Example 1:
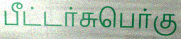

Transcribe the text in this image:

பீட்டர்சுபெர்கு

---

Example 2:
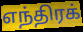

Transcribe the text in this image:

எந்திரக்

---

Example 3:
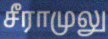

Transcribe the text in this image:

சீராமுலு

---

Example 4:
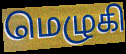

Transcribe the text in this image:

மெழுகி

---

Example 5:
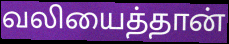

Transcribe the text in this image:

வலியைத்தான்